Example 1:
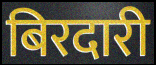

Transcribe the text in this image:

बिरदारी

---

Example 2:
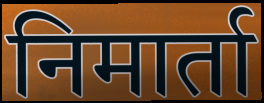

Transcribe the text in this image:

निमार्ता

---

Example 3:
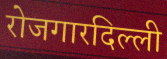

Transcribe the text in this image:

रोजगारदिल्ली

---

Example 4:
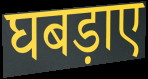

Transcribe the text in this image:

घबड़ाए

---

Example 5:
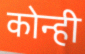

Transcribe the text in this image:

कोन्ही